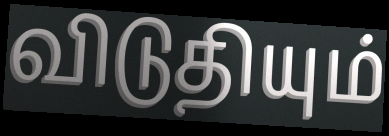
விடுதியும்